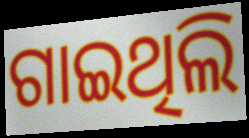
ଗାଇଥିଲି